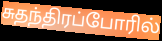
சுதந்திரப்போரில்